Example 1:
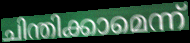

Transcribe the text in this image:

ചിന്തിക്കാമെന്ന്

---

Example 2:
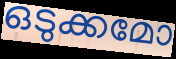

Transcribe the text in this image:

ഒടുക്കമോ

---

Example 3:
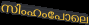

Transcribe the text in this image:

സിംഹംപോലെ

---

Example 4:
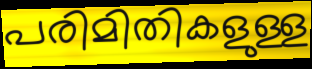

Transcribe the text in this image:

പരിമിതികളുള്ള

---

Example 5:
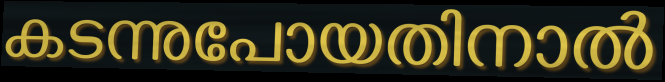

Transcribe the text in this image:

കടന്നുപോയതിനാൽ